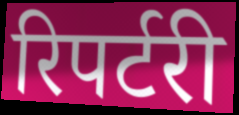
रिपर्टरी